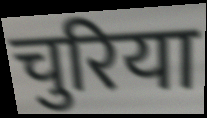
चुरिया